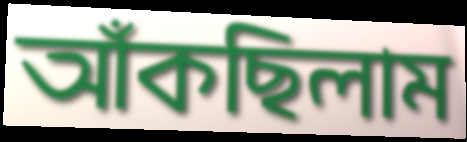
আঁকছিলাম